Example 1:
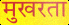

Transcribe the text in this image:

मुखरता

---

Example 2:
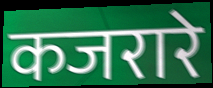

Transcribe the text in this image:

कजरारे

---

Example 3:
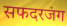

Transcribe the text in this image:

सफदरजंग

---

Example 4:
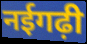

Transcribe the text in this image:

नईगढ़ी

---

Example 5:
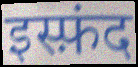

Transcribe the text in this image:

इस्फ़ंद